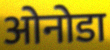
ओनोडा